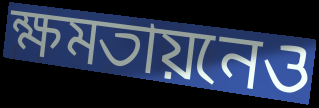
ক্ষমতায়নেও